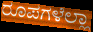
ರೂಪಗಳೆಲ್ಲಾ